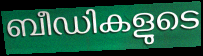
ബീഡികളുടെ